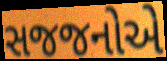
સજજનોએ